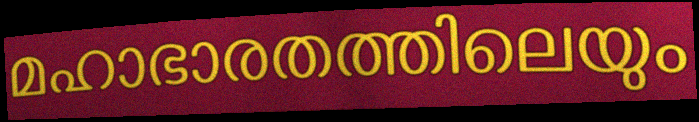
മഹാഭാരതത്തിലെയും